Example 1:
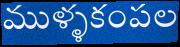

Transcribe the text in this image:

ముళ్ళకంపల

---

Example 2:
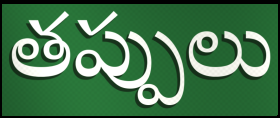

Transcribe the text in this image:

తప్పులు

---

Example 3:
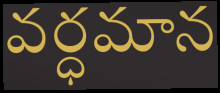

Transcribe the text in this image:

వర్ధమాన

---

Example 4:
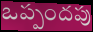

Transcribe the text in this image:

ఒప్పందపు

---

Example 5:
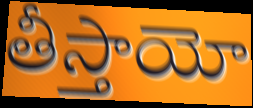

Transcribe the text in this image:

తీస్తాయో